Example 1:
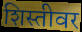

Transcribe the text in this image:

शिस्तीवर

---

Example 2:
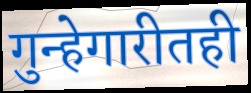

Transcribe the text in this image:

गुन्हेगारीतही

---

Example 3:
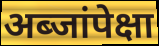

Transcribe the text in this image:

अब्जांपेक्षा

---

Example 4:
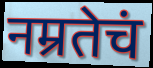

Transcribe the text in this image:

नम्रतेचं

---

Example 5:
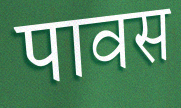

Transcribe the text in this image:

पावस